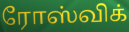
ரோஸ்விக்